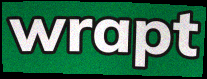
wrapt